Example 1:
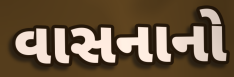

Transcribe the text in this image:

વાસનાનો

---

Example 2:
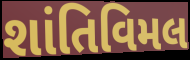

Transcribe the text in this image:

શાંતિવિમલ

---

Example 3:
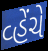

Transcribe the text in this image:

વ્હેંચે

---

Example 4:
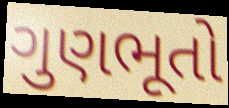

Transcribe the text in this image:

ગુણભૂતો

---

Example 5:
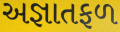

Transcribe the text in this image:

અજ્ઞાતફળ